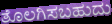
ತೊಲಗಿಸಬಹುದು